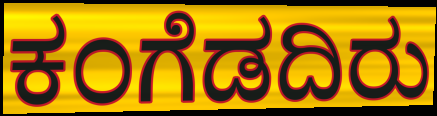
ಕಂಗೆಡದಿರು